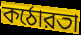
কঠোরতা